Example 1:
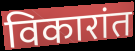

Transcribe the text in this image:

विकारांत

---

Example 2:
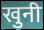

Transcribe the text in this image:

खुनी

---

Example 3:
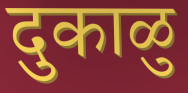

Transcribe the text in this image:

दुकाळु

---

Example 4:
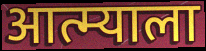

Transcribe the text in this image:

आत्म्याला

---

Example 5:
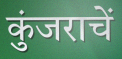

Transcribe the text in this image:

कुंजराचें